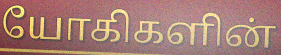
யோகிகளின்